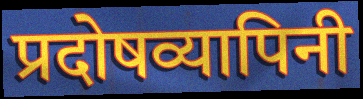
प्रदोषव्यापिनी